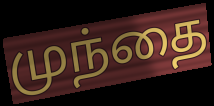
முந்தை